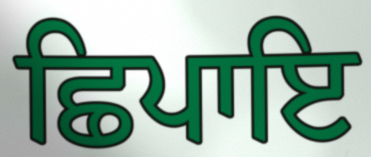
ਛਿਪਾਇ